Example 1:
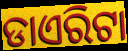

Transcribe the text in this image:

ଡାଏରିଟା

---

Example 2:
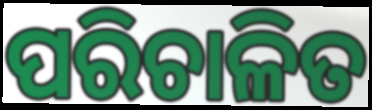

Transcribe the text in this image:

ପରିଚାଳିତ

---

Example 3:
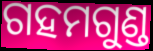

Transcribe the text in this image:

ଗହମଗୁଣ୍ଡ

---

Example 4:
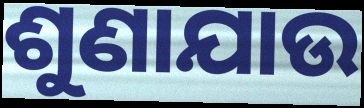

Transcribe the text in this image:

ଶୁଣାଯାଉ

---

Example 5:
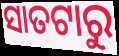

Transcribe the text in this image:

ସାତଟାରୁ